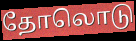
தோலொடு